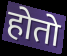
होतो